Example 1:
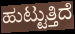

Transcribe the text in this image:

ಹುಟ್ಟುತ್ತಿದೆ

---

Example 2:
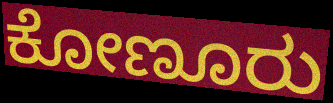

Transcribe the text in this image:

ಕೋಣೂರು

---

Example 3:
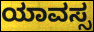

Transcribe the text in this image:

ಯಾವಸ್ಸ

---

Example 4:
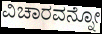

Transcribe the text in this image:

ವಿಚಾರವನ್ನೋ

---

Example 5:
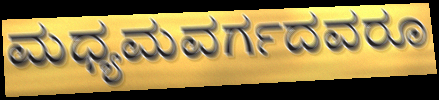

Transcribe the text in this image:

ಮಧ್ಯಮವರ್ಗದವರೂ